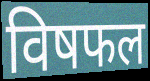
विषफल